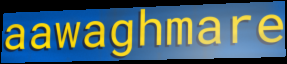
aawaghmare